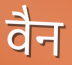
वैन